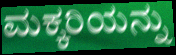
ಮಕ್ಕರಿಯನ್ನು